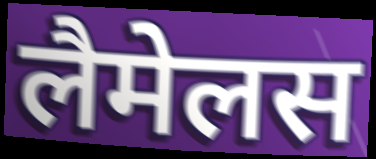
लैमेलस